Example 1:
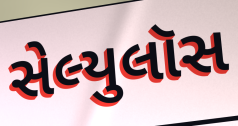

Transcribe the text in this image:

સેલ્યુલૉસ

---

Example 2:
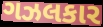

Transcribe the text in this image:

ગઝલકાર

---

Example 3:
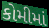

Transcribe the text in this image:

કોમીમાં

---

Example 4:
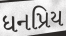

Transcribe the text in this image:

ધનપ્રિય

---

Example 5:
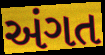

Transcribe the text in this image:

અંગત